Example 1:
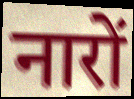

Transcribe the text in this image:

नारों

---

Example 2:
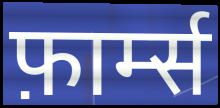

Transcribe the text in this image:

फ़ार्म्स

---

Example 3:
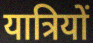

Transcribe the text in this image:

यात्रियों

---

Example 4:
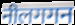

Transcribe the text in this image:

नीलगगन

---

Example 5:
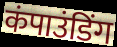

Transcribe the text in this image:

कंपाउंडिंग